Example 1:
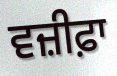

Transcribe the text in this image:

ਵਜ਼ੀਫ਼ਾ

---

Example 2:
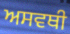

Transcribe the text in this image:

ਅਸਵਥੀ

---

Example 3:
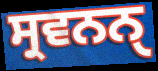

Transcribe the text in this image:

ਸ੍ਰਵਨਨੑ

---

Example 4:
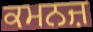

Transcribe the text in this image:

ਕਮਨਜ਼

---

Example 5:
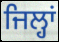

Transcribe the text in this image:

ਜਿਲ੍ਹਾਂ